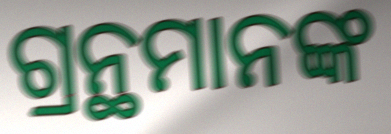
ଗ୍ରନ୍ଥମାନଙ୍କ